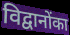
विद्वानोंका